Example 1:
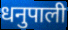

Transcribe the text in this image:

धनुपाली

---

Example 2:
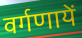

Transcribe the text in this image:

वर्गणायें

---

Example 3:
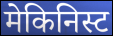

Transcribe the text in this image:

मेकिनिस्ट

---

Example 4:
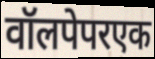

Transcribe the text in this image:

वॉलपेपरएक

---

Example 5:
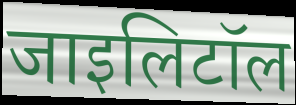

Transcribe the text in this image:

जाइलिटॉल